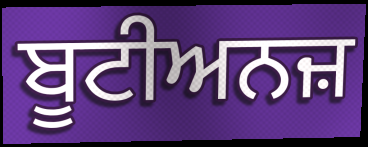
ਬੂਟੀਅਨਜ਼